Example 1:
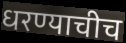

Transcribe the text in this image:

धरण्याचीच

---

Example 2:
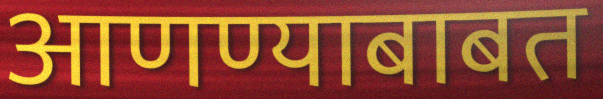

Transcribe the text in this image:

आणण्याबाबत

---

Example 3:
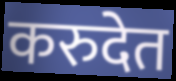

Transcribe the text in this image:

करुदेत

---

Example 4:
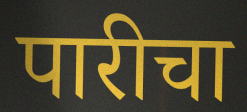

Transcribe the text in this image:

पारीचा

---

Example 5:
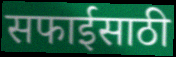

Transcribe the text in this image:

सफाईसाठी